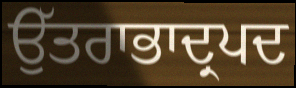
ਉੱਤਰਾਭਾਦ੍ਰਪਦ